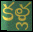
కళ్ల